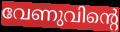
വേണുവിന്റെ